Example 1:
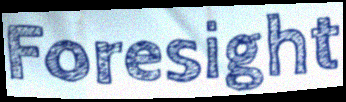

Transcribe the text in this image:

Foresight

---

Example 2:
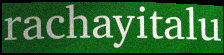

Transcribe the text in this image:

rachayitalu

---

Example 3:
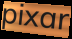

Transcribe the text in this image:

pixar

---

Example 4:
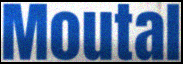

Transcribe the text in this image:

Moutal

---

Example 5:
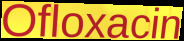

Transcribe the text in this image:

Ofloxacin